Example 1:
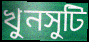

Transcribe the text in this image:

খুনসুটি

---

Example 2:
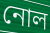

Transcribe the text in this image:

নোল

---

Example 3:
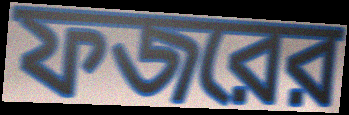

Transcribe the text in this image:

ফজরের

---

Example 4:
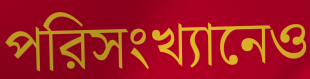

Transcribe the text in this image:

পরিসংখ্যানেও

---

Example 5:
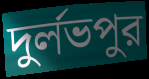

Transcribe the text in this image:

দুর্লভপুর